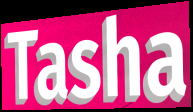
Tasha